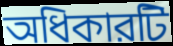
অধিকারটি